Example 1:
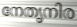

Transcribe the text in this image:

നേതൃനിര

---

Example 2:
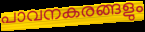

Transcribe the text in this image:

പാവനകരങ്ങളും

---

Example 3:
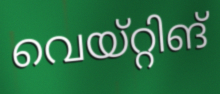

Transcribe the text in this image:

വെയ്റ്റിങ്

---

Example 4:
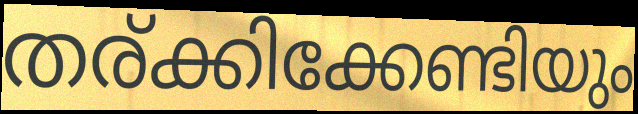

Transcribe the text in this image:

തര്ക്കിക്കേണ്ടിയും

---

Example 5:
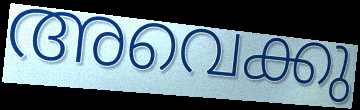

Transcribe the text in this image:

അവെക്കു